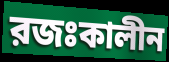
রজঃকালীন